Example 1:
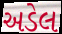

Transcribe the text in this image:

અડેલ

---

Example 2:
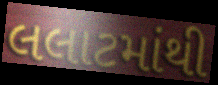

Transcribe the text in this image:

લલાટમાંથી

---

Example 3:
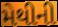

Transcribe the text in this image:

મેથીની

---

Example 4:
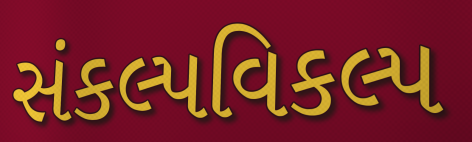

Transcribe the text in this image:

સંકલ્પવિકલ્પ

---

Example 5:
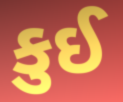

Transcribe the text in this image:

કુઈ